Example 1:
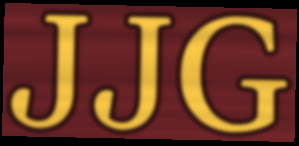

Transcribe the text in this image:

JJG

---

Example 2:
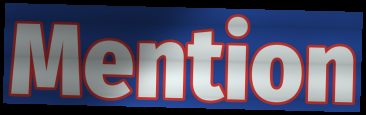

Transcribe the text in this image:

Mention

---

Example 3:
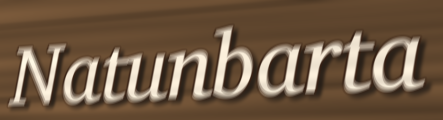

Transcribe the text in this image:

Natunbarta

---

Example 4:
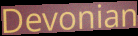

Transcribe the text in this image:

Devonian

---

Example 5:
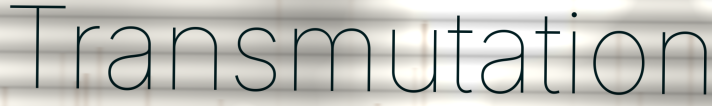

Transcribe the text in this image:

Transmutation